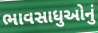
ભાવસાધુઓનું